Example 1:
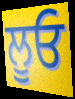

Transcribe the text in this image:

ਲੂਓ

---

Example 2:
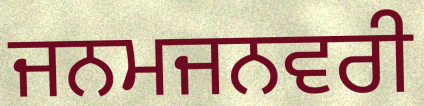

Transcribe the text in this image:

ਜਨਮਜਨਵਰੀ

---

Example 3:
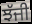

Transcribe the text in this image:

ਝੱਜੀ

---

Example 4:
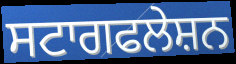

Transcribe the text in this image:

ਸਟਾਗਫਲੇਸ਼ਨ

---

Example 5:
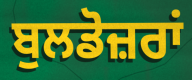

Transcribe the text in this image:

ਬੁਲਡੋਜ਼ਰਾਂ